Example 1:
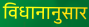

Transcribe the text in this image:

विधानानुसार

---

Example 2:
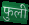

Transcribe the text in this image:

फुली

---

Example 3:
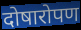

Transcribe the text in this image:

दोषारोपण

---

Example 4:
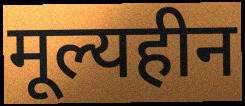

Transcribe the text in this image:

मूल्यहीन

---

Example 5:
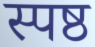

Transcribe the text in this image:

स्पष्ठ